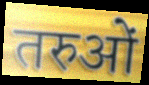
तरुओं